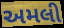
અમલી